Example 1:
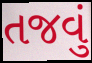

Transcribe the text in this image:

તજવું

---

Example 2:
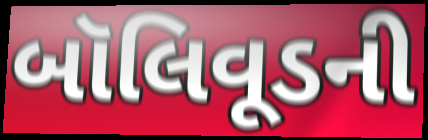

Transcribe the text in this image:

બૉલિવૂડની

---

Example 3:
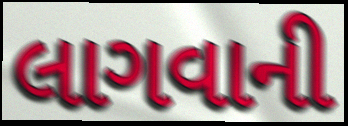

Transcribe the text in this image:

લાગવાની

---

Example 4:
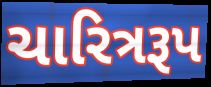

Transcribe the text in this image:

ચારિત્રરૂપ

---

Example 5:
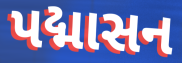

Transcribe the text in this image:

પદ્માસન